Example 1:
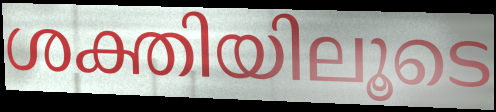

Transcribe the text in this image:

ശക്തിയിലൂടെ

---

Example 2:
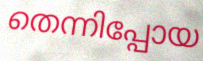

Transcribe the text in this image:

തെന്നിപ്പോയ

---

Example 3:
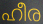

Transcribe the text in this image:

ഹീര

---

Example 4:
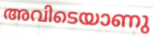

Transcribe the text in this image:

അവിടെയാണു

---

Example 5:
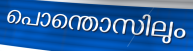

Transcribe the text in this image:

പൊന്തൊസിലും